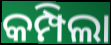
କମ୍ପିଲା